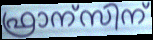
ഫ്രാന്സിന്